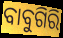
ବାବୁଗିରି